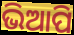
ଭିଆପି